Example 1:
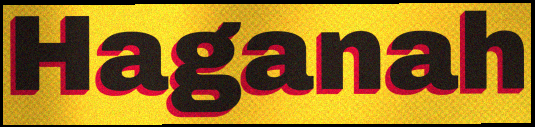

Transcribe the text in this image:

Haganah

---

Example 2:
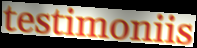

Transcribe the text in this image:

testimoniis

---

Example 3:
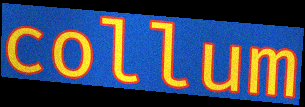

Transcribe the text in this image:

collum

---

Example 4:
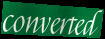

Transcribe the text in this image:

converted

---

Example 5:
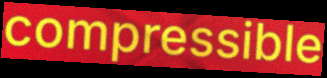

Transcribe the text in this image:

compressible